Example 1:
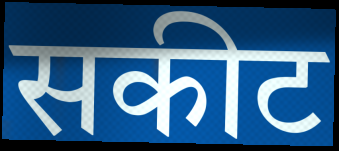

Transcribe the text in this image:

सकीट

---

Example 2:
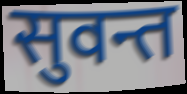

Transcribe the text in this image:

सुवन्त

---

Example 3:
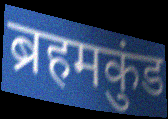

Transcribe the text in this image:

ब्रहमकुंड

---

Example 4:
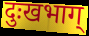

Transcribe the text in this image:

दुःखभाग्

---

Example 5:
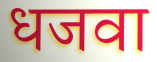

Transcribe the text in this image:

धजवा